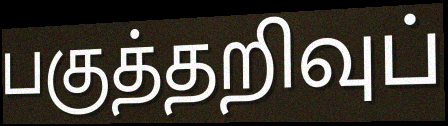
பகுத்தறிவுப்